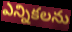
ఎన్నికలను